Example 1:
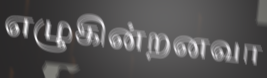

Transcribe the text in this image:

எழுகின்றனவா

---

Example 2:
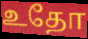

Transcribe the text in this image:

உதோ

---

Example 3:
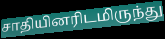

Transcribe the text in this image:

சாதியினரிடமிருந்து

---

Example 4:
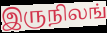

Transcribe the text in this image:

இருநிலங்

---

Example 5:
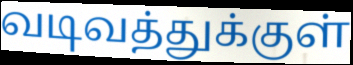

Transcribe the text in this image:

வடிவத்துக்குள்